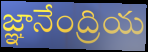
జ్ఞానేంద్రియ